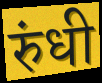
रुंधी